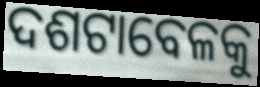
ଦଶଟାବେଳକୁ